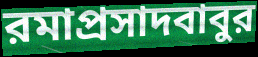
রমাপ্রসাদবাবুর